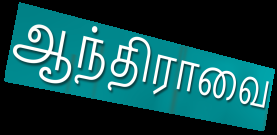
ஆந்திராவை